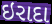
ઇરાદા